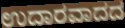
ಉದಾರವಾದದ